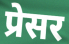
प्रेसर